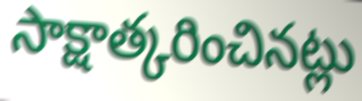
సాక్షాత్కరించినట్లు